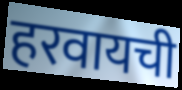
हरवायची